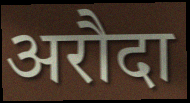
अरौदा